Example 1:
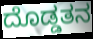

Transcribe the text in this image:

ದೊಡ್ಡತನ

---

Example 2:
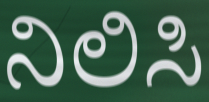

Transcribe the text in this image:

ನಿಲಿಸಿ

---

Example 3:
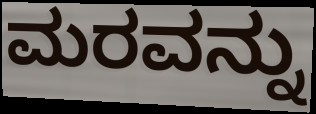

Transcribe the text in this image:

ಮರವನ್ನು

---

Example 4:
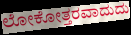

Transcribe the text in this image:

ಲೋಕೋತ್ತರವಾದುದು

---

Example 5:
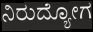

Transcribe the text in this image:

ನಿರುದ್ಯೋಗ